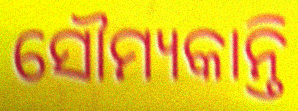
ସୌମ୍ୟକାନ୍ତି